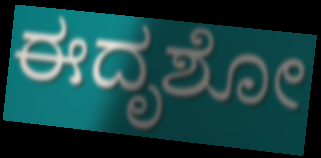
ಈದೃಶೋ